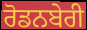
ਰੋਡਨਬੇਰੀ